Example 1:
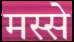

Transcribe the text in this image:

मस्से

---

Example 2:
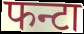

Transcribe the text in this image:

फन्टा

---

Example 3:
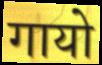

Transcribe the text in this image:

गायो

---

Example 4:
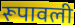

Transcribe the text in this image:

रूपावली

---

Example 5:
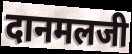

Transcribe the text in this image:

दानमलजी